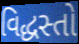
વિદ્ધસ્તો